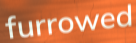
furrowed